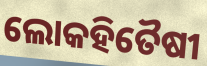
ଲୋକହିତୈଷୀ